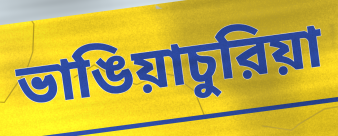
ভাঙিয়াচুরিয়া